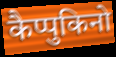
कैप्पुकिनो